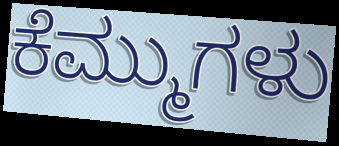
ಕೆಮ್ಮುಗಳು